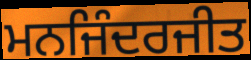
ਮਨਜਿੰਦਰਜੀਤ